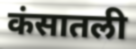
कंसातली